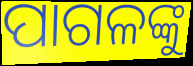
ପାଗଳଙ୍କୁ